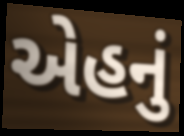
એહનું